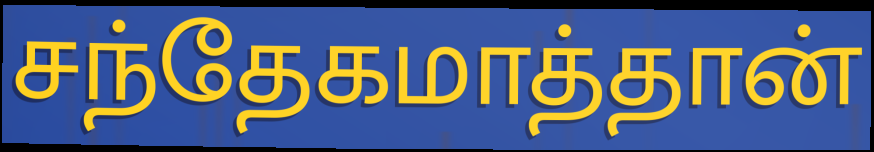
சந்தேகமாத்தான்